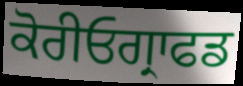
ਕੋਰੀਓਗ੍ਰਾਫਡ